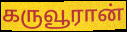
கருவூரான்